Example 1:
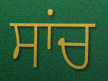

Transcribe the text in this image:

ਸਾਂਚ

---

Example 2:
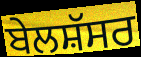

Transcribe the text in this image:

ਬੇਲਸ਼ੱਸਰ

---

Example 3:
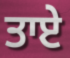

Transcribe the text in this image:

ਤਾਏ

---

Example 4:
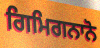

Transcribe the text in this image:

ਗਿਮਿਗਨਾਨੋ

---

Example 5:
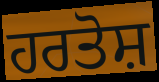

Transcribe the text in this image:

ਹਰਤੋਸ਼